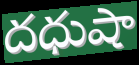
దధుషా